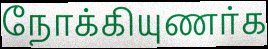
நோக்கியுணர்க